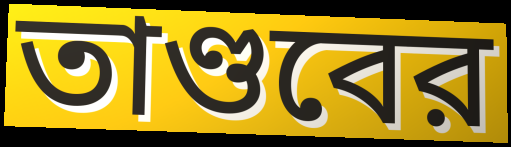
তাণ্ডবের